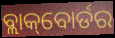
ବ୍ଲାକ୍‌ବୋର୍ଡର